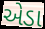
એડા